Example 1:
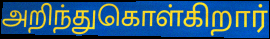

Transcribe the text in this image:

அறிந்துகொள்கிறார்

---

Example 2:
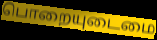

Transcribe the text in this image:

பொறையுடைமை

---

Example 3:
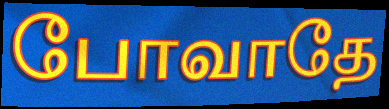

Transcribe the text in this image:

போவாதே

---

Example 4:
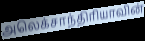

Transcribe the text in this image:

அலெக்சாந்திரியாவின்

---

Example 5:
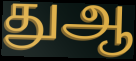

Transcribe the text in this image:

துஆ